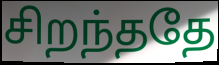
சிறந்ததே